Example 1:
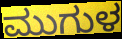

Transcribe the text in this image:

ಮುಗುಳ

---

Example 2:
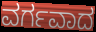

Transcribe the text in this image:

ವರ್ಗವಾದ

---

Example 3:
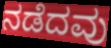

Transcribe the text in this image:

ನಡೆದವು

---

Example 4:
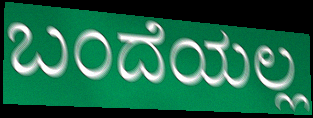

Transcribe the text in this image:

ಬಂದೆಯಲ್ಲ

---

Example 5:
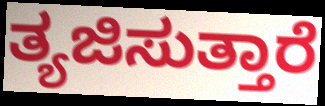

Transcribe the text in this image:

ತ್ಯಜಿಸುತ್ತಾರೆ